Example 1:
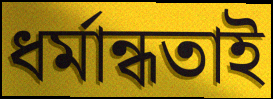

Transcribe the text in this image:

ধর্মান্ধতাই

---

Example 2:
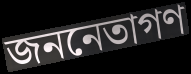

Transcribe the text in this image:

জননেতাগণ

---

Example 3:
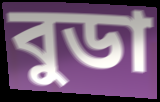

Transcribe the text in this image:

বুডা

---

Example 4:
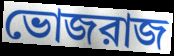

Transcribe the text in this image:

ভোজরাজ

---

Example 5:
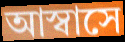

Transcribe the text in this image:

আস্বাসে